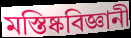
মস্তিষ্কবিজ্ঞানী